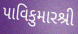
પાવિકુમારશ્રી